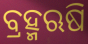
ବ୍ରହ୍ମଋଷି